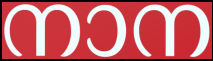
നാന